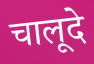
चालूदे